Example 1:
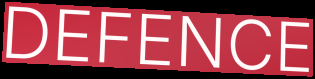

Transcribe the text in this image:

DEFENCE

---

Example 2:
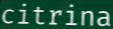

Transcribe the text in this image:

citrina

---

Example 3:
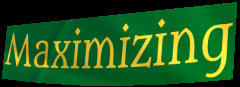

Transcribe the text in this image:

Maximizing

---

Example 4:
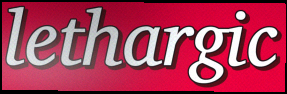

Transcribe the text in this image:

lethargic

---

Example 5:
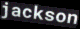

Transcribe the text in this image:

jackson